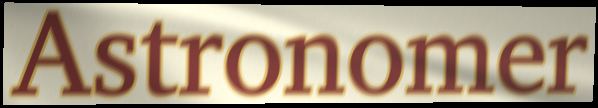
Astronomer